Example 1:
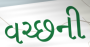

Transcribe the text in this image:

વચ્છની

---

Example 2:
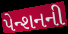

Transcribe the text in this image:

પેન્શનની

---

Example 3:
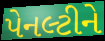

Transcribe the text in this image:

પેનલ્ટીને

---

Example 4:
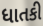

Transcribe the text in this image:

ધાતકી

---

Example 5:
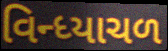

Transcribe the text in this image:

વિન્ધ્યાચળ